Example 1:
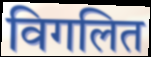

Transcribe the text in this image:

विगलित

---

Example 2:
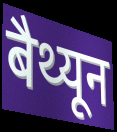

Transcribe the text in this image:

बैथ्यून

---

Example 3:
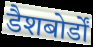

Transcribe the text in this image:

डैशबोर्डों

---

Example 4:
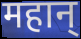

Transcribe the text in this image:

महान्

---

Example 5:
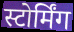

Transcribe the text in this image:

स्टोर्मिंग